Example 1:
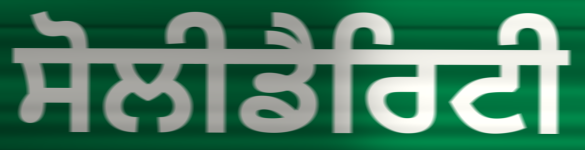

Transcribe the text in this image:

ਸੋਲੀਡੈਰਿਟੀ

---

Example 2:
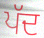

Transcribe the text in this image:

ਪੱਦ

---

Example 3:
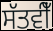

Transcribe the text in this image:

ਸੱਤਵੀਁ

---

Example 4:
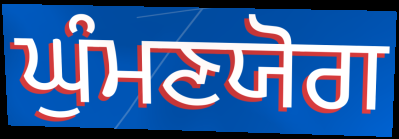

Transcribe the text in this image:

ਘੁੰਮਣਯੋਗ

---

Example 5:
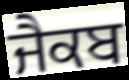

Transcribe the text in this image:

ਜੈਕਬ